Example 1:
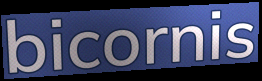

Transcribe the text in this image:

bicornis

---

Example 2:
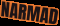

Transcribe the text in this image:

NARMAD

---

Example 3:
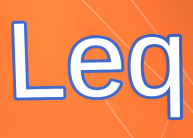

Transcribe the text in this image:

Leq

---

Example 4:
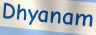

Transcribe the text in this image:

Dhyanam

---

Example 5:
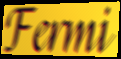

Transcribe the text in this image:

Fermi